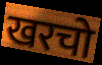
खरचो